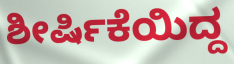
ಶೀರ್ಷಿಕೆಯಿದ್ದ